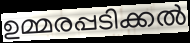
ഉമ്മരപ്പടിക്കൽ